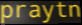
praytn